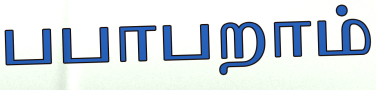
பபாபறாம்